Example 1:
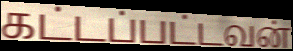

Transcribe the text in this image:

கட்டப்பட்டவன்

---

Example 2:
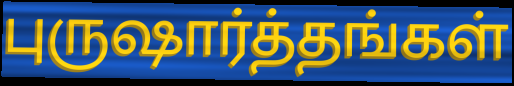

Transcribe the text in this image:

புருஷார்த்தங்கள்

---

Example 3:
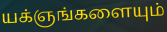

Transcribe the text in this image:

யக்ஞங்களையும்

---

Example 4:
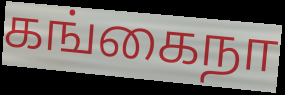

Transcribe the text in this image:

கங்கைநா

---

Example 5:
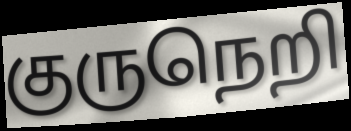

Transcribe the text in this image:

குருநெறி